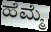
ಹೆಮ್ಮೆ